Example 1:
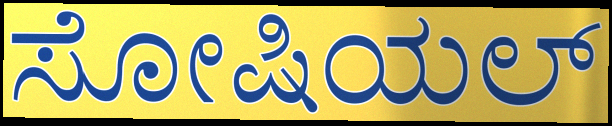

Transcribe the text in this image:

ಸೋಷಿಯಲ್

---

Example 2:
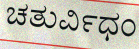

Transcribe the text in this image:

ಚತುರ್ವಿಧಂ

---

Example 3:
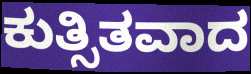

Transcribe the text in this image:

ಕುತ್ಸಿತವಾದ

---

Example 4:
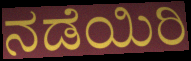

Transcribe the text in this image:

ನಡೆಯಿರಿ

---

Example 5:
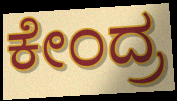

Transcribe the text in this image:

ಕೇಂದ್ರ